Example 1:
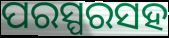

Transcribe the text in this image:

ପରସ୍ପରସହ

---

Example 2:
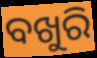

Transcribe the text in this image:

ବଖୁରି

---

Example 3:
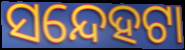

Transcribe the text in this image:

ସନ୍ଦେହଟା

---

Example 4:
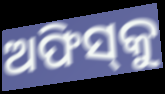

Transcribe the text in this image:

ଅଫିସ୍‌କୁ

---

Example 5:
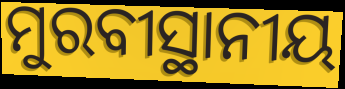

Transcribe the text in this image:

ମୁରବୀସ୍ଥାନୀୟ